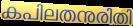
കപിലതനുരിതി